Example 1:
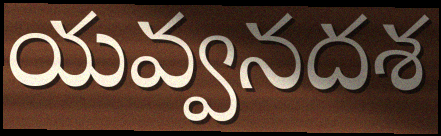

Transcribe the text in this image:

యవ్వనదశ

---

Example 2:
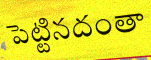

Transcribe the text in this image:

పెట్టినదంతా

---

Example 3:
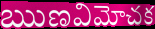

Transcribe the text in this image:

ఋణవిమోచక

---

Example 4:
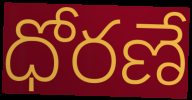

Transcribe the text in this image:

ధోరణే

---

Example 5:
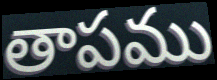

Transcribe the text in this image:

తాపము